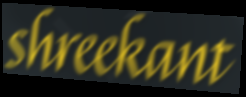
shreekant